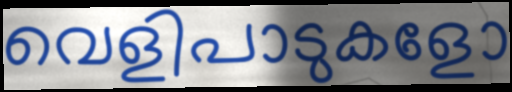
വെളിപാടുകളോ